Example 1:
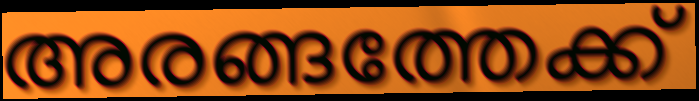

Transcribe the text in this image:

അരങ്ങത്തേക്ക്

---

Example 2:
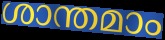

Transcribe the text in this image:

ശാന്തമാം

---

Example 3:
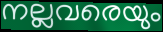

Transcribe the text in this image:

നല്ലവരെയും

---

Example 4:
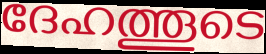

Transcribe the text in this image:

ദേഹത്തൂടെ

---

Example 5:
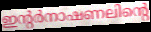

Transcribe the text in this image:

ഇന്റർനാഷണലിന്റെ